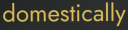
domestically